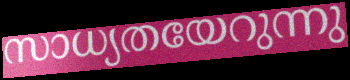
സാധ്യതയേറുന്നു